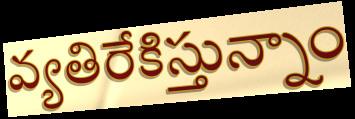
వ్యతిరేకిస్తున్నాం